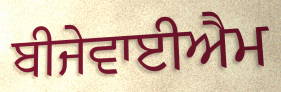
ਬੀਜੇਵਾਈਐਮ